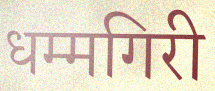
धम्मगिरी